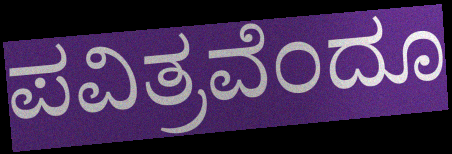
ಪವಿತ್ರವೆಂದೂ